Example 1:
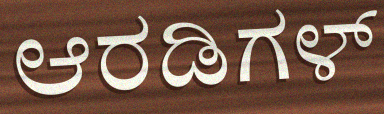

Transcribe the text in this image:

ಆರಡಿಗಳ್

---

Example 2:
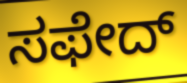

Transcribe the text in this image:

ಸಫೇದ್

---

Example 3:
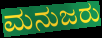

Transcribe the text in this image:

ಮನುಜರು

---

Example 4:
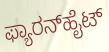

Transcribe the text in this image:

ಫ್ಯಾರನ್‌ಹೈಟ್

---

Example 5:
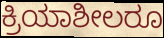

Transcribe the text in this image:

ಕ್ರಿಯಾಶೀಲರೂ